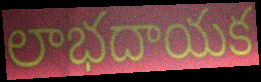
లాభదాయక